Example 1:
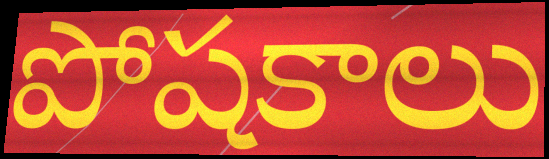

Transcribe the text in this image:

పోషకాలు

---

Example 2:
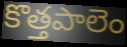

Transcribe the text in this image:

కొత్తపాలెం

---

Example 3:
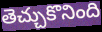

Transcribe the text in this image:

తెచ్చుకొనింది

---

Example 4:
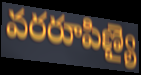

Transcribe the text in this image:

వరరూపిణ్యై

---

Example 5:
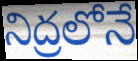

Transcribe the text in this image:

నిద్రలోనే